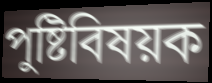
পুষ্টিবিষয়ক